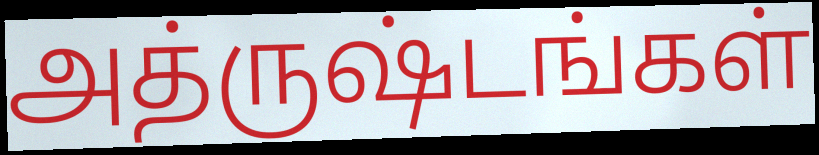
அத்ருஷ்டங்கள்